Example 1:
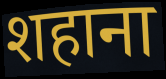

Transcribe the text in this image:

शहाना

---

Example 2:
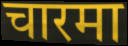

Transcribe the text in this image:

चारमा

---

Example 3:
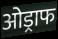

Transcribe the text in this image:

ओड्राफ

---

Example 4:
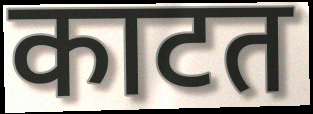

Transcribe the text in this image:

काटत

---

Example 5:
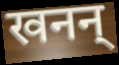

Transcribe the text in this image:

खनन्